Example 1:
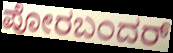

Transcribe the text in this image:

ಪೋರಬಂದರ್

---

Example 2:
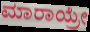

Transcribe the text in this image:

ಮಾರಾಯ್ರೇ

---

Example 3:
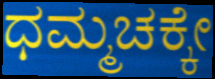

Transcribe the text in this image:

ಧಮ್ಮಚಕ್ಕೇ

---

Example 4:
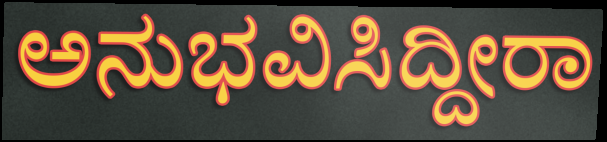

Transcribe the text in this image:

ಅನುಭವಿಸಿದ್ದೀರಾ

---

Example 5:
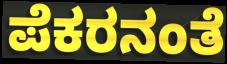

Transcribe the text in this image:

ಪೆಕರನಂತೆ